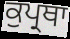
ਕੁਪ੍ਰਥਾ